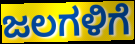
ಜಲಗಳಿಗೆ